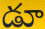
డూ